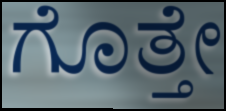
ಗೊತ್ತೇ